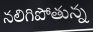
నలిగిపోతున్న